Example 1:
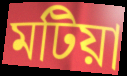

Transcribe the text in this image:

মটিয়া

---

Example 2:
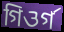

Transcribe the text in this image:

গিওৰ্গ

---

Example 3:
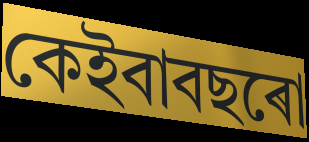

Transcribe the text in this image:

কেইবাবছৰো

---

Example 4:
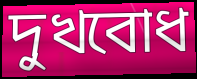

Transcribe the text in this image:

দুখবোধ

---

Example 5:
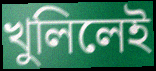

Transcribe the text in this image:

খুলিলেই